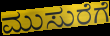
ಮುಸುರೆಗೆ